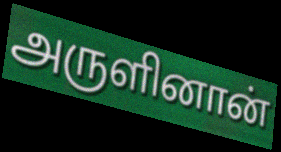
அருளினான்